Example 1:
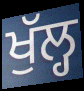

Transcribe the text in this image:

ਖੁੱਲ੍ਹ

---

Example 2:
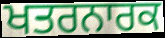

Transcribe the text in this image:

ਖਤਰਨਾਰਕ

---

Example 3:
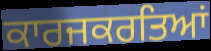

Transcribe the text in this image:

ਕਾਰਜਕਰਤਿਆਂ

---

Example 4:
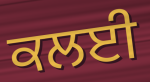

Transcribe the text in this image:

ਕਲਈ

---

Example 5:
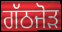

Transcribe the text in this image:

ਗੱਠਜੋੜ